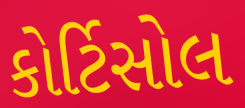
કોર્ટિસોલ